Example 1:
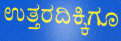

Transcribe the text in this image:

ಉತ್ತರದಿಕ್ಕಿಗೂ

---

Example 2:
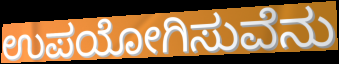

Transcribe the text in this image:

ಉಪಯೋಗಿಸುವೆನು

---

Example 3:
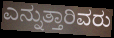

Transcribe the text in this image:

ಎನ್ನುತ್ತಾರಿವರು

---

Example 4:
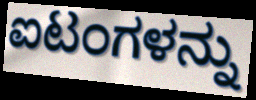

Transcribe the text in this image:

ಐಟಂಗಳನ್ನು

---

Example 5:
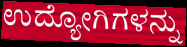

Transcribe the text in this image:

ಉದ್ಯೋಗಿಗಳನ್ನು